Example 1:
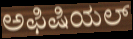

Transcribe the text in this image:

ಅಫಿಷಿಯಲ್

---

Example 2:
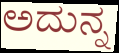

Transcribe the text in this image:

ಅದುನ್ನ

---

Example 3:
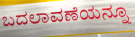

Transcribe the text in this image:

ಬದಲಾವಣೆಯನ್ನೂ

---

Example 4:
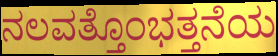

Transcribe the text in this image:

ನಲವತ್ತೊಂಭತ್ತನೆಯ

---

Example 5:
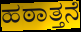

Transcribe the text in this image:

ಹಠಾತ್ತನೆ